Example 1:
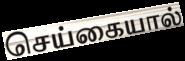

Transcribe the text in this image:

செய்கையால்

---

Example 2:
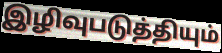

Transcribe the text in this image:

இழிவுபடுத்தியும்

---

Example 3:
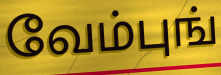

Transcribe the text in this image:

வேம்புங்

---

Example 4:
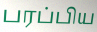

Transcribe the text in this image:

பரப்பிய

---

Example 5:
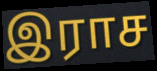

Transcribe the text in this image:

இராச